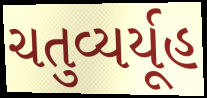
ચતુવ્યર્યૂહ